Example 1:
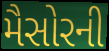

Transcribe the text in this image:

મૈસોરની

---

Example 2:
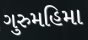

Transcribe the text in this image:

ગુરુમહિમા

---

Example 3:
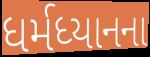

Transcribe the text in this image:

ધર્મધ્યાનના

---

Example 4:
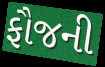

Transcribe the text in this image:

ફૌજની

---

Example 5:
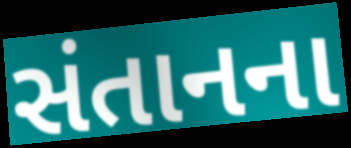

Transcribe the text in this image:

સંતાનના